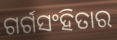
ଗର୍ଗସଂହିତାର